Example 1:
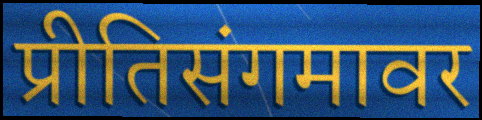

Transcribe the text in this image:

प्रीतिसंगमावर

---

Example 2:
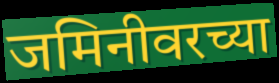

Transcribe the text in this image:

जमिनीवरच्या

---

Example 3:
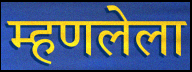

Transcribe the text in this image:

म्हणलेला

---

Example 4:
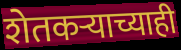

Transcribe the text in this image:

शेतकऱ्याच्याही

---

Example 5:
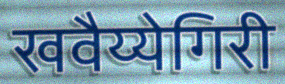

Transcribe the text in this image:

खवैय्येगिरी